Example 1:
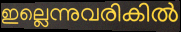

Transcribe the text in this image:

ഇല്ലെന്നുവരികിൽ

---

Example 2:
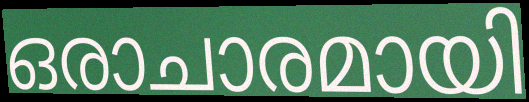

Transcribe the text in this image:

ഒരാചാരമായി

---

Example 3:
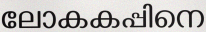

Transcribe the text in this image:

ലോകകപ്പിനെ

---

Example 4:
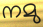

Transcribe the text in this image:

നമു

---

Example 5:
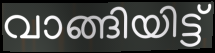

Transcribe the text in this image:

വാങ്ങിയിട്ട്